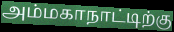
அம்மகாநாட்டிற்கு